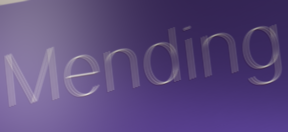
Mending